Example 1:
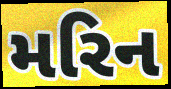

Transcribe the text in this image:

મરિન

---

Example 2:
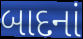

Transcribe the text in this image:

બાદનાં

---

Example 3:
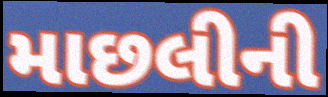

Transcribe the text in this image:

માછલીની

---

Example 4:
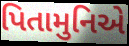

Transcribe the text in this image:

પિતામુનિએ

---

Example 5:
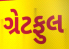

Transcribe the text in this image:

ગ્રેટફુલ